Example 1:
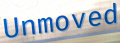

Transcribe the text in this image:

Unmoved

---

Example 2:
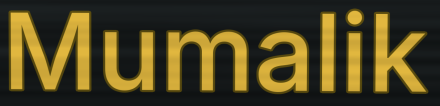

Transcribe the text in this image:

Mumalik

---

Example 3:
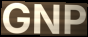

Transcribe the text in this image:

GNP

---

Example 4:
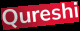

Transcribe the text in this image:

Qureshi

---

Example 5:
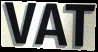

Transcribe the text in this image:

VAT